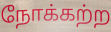
நோக்கற்ற